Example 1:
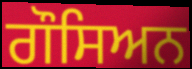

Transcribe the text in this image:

ਗੌਸਿਅਨ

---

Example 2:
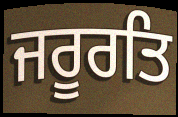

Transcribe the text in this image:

ਜਰੂਰਤਿ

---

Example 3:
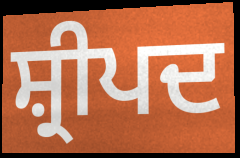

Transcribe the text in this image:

ਸ਼੍ਰੀਪਦ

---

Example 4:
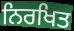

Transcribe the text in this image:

ਨਿਰਖਿਤ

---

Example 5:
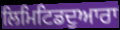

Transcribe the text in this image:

ਲਿਮਿਟਿਡਦੁਆਰਾ